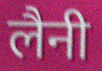
लैनी